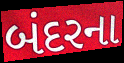
બંદરના